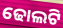
ଢୋଲଟି